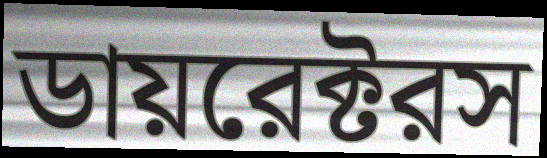
ডায়রেক্টরস